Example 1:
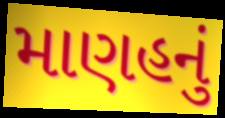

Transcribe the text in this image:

માણહનું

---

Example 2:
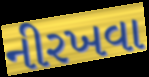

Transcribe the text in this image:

નીરખવા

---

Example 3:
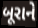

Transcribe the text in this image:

બૂરાને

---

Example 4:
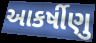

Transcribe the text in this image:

આકર્ષીણુ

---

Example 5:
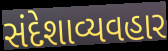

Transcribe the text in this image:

સંદેશાવ્યવહાર